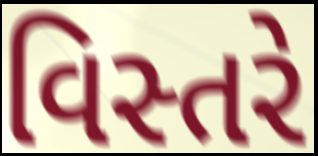
વિસ્તરે